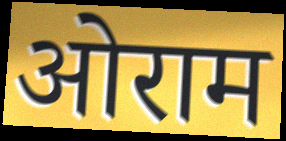
ओराम